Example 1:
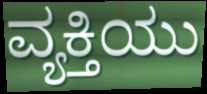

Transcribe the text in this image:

ವ್ಯಕ್ತಿಯು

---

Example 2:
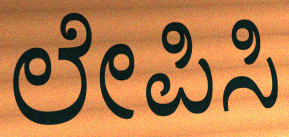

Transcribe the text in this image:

ಲೇಪಿಸಿ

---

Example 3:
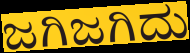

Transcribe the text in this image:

ಜಗಿಜಗಿದು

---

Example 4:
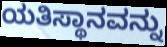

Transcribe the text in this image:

ಯತಿಸ್ಥಾನವನ್ನು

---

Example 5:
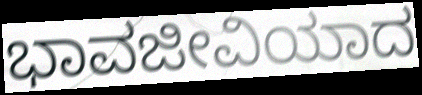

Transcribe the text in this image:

ಭಾವಜೀವಿಯಾದ